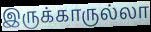
இருக்காருல்லா